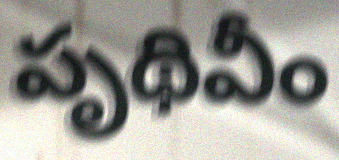
పృథివీం